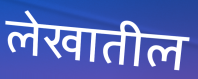
लेखातील